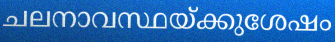
ചലനാവസ്ഥയ്ക്കുശേഷം